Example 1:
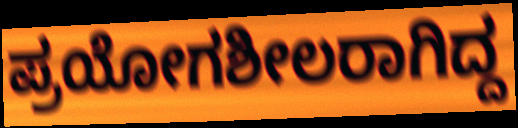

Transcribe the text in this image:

ಪ್ರಯೋಗಶೀಲರಾಗಿದ್ದ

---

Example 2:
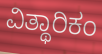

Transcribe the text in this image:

ವಿತ್ಥಾರಿಕಂ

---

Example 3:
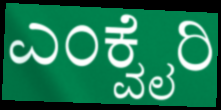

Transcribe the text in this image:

ಎಂಕ್ವೈರಿ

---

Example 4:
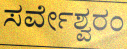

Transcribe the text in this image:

ಸರ್ವೇಶ್ವರಂ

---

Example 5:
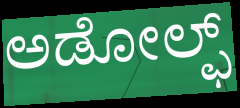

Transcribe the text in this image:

ಅಡೋಲ್ಫ್